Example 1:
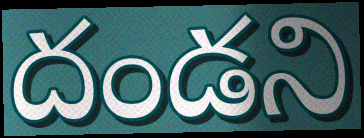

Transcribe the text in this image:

దండని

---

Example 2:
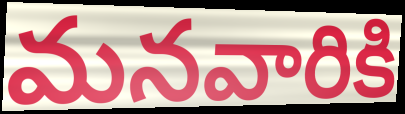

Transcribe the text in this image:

మనవారికి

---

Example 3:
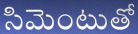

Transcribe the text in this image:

సిమెంటుతో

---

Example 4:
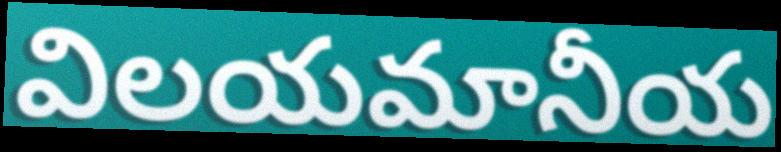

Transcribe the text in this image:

విలయమానీయ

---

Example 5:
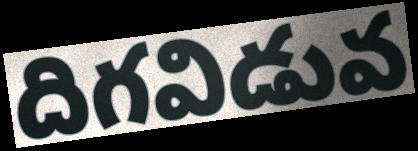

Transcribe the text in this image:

దిగవిడువ